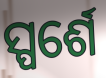
ସ୍ପର୍ଶେ